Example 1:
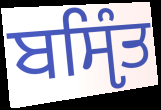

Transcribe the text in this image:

ਬਸੵਿੰਤ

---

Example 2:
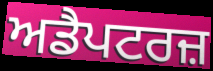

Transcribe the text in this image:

ਅਡੈਪਟਰਜ਼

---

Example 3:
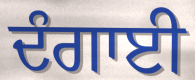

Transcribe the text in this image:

ਦੰਗਾਈ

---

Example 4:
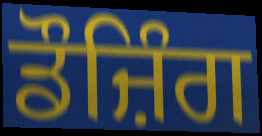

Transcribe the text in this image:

ਡੌਜ਼ਿੰਗ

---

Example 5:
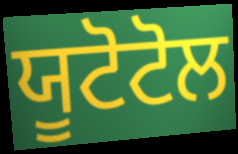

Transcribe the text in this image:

ਯੂਟੋਟੋਲ